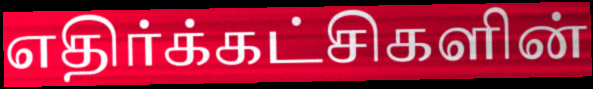
எதிர்க்கட்சிகளின்